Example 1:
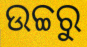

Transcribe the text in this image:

ଉଚ୍ଚରୁ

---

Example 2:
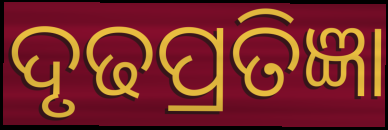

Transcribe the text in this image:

ଦୃଢପ୍ରତିଜ୍ଞା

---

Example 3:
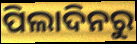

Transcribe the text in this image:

ପିଲାଦିନରୁ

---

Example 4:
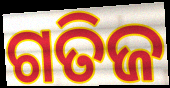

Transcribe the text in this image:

ଗତିଜ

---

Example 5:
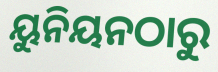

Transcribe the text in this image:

ୟୁନିୟନଠାରୁ